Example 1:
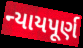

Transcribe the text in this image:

ન્યાયપૂર્ણ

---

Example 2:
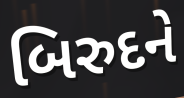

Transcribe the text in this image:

બિરુદને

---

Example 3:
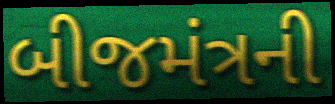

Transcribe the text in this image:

બીજમંત્રની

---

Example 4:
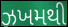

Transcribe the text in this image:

ઝખમથી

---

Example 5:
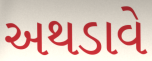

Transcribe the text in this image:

અથડાવે